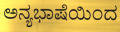
ಅನ್ಯಭಾಷೆಯಿಂದ